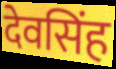
देवसिंह